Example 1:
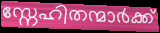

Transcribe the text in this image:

സ്നേഹിതന്മാർക്ക്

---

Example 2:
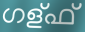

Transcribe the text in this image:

ഗള്ഫ്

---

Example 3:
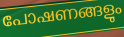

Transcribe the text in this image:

പോഷണങ്ങളും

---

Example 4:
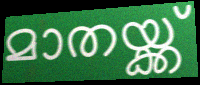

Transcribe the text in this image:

മാതയ്ക്ക്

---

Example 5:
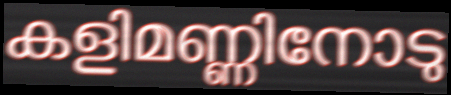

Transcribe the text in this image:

കളിമണ്ണിനോടു